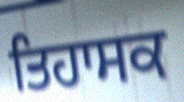
ਤਿਹਾਸਕ